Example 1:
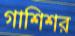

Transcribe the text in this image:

গাশিশর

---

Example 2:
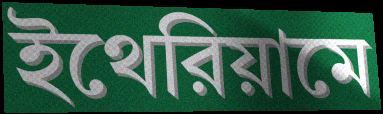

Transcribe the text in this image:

ইথেরিয়ামে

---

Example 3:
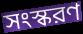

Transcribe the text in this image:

সংস্করণ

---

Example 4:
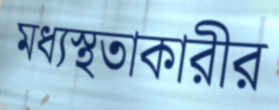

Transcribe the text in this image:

মধ্যস্থতাকারীর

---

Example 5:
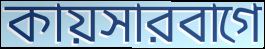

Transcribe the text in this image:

কায়সারবাগে